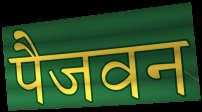
पैजवन